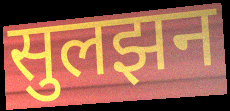
सुलझन